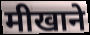
मीखाने